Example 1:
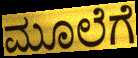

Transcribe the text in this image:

ಮೂಲೆಗೆ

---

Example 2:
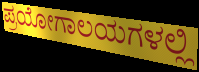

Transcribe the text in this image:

ಪ್ರಯೋಗಾಲಯಗಳಲ್ಲಿ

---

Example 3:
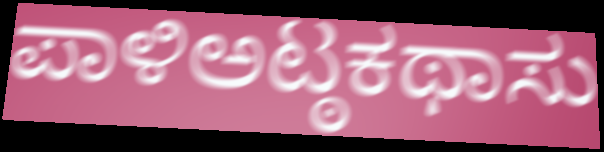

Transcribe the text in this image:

ಪಾಳಿಅಟ್ಠಕಥಾಸು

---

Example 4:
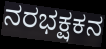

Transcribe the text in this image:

ನರಭಕ್ಷಕನ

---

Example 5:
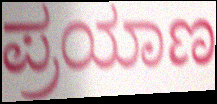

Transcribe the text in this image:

ಪ್ರಯಾಣ